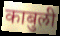
काबुली